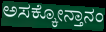
ಅಸಕ್ಕೋನ್ತಾನಂ